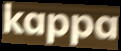
kappa